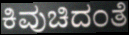
ಕಿವುಚಿದಂತೆ